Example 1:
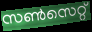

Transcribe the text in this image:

സൺസെറ്റ്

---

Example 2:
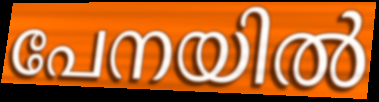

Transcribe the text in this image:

പേനയിൽ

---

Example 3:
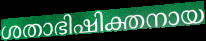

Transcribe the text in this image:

ശതാഭിഷിക്തനായ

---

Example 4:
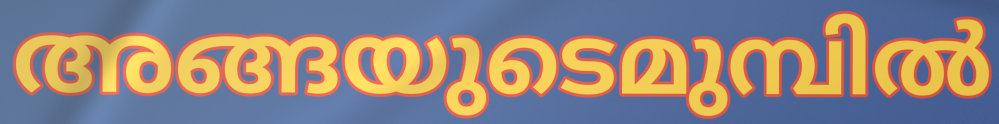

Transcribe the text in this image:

അങ്ങയുടെമുമ്പിൽ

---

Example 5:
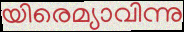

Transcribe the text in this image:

യിരെമ്യാവിന്നു